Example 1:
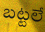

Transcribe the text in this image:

బట్టలే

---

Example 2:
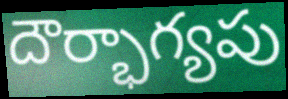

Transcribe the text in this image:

దౌర్భాగ్యపు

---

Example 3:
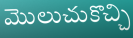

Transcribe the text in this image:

మొలుచుకొచ్చి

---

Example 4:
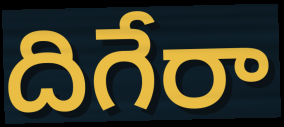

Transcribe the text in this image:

దిగేరా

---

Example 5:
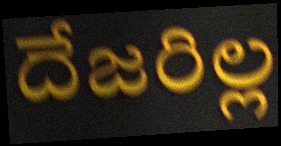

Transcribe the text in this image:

దేజరిల్ల